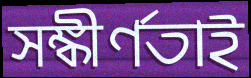
সঙ্কীর্ণতাই